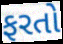
ફરતો